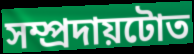
সম্প্ৰদায়টোত